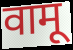
वामू